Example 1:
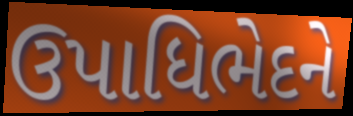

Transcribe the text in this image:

ઉપાધિભેદને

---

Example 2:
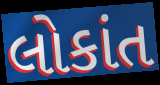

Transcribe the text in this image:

લોકાંત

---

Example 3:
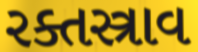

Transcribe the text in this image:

રક્તસ્ત્રાવ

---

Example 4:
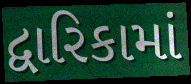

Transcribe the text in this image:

દ્વારિકામાં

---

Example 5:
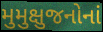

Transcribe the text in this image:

મુમુક્ષુજનોનાં